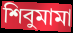
শিবুমামা